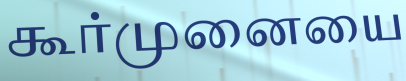
கூர்முனையை